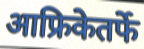
आफ्रिकेतर्फे